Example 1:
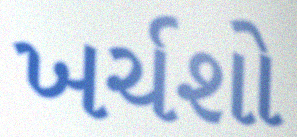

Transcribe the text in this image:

ખર્ચશો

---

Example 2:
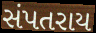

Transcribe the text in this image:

સંપતરાય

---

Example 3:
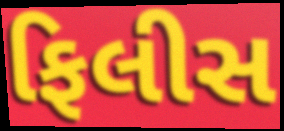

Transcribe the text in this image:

ફિલીસ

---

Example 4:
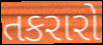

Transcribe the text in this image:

તકરારો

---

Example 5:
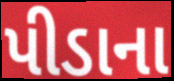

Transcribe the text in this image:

પીડાના